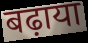
बढ़ाया